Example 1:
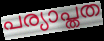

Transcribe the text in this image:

പര്യാപ്തത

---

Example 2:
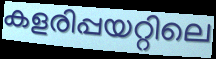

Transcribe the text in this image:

കളരിപ്പയറ്റിലെ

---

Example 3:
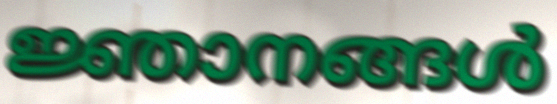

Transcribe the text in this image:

ജ്ഞാനങ്ങൾ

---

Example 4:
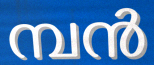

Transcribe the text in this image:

മ്പൻ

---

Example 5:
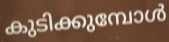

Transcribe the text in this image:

കുടിക്കുമ്പോൾ